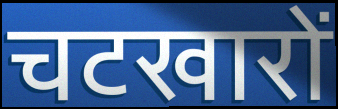
चटखारों